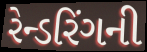
રેન્ડરિંગની